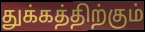
துக்கத்திற்கும்